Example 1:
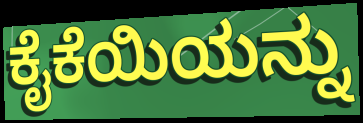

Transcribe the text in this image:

ಕೈಕೆಯಿಯನ್ನು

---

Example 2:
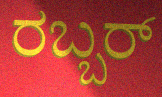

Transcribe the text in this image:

ರಬ್ಬರ್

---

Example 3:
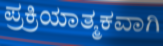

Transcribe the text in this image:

ಪ್ರಕ್ರಿಯಾತ್ಮಕವಾಗಿ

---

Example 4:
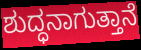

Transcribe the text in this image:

ಶುದ್ಧನಾಗುತ್ತಾನೆ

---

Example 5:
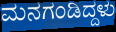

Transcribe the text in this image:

ಮನಗಂಡಿದ್ದಳು